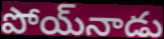
పోయ్‌నాడు